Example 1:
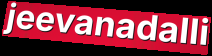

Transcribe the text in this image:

jeevanadalli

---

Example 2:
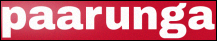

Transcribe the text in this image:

paarunga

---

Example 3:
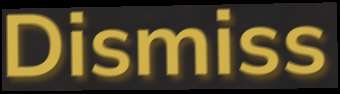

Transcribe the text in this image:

Dismiss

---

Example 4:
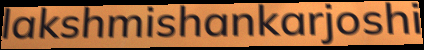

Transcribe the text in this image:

lakshmishankarjoshi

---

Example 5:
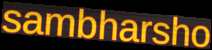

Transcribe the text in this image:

sambharsho